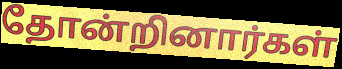
தோன்றினார்கள்